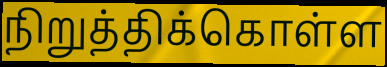
நிறுத்திக்கொள்ள